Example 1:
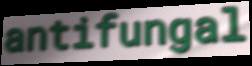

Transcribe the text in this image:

antifungal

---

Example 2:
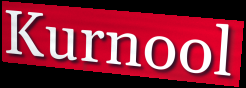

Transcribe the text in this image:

Kurnool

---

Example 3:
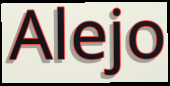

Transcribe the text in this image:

Alejo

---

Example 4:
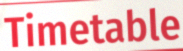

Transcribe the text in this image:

Timetable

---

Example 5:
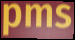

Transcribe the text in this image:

pms